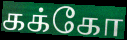
கக்கோ